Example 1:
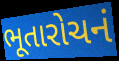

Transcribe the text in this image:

ભૂતારોચનં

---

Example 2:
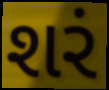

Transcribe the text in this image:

શરં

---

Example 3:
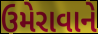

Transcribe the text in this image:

ઉમેરાવાને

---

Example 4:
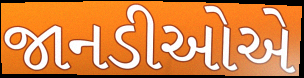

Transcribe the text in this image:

જાનડીઓએ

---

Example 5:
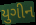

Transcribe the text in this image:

યુગીન